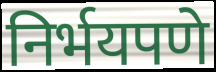
निर्भयपणे